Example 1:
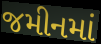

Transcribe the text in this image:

જમીનમાં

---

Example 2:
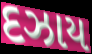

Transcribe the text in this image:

દઝાય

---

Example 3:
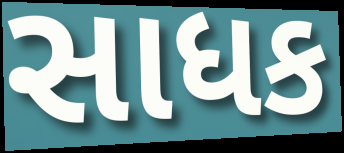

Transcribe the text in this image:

સાધક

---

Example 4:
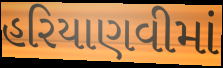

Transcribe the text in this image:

હરિયાણવીમાં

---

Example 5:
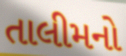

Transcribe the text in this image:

તાલીમનો